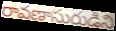
రావణాసురుడిని